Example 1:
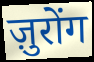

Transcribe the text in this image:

ज़ुरोंग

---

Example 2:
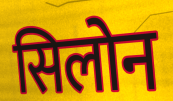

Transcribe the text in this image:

सिलोन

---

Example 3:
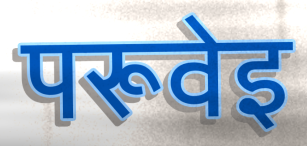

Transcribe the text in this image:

परूवेइ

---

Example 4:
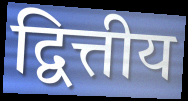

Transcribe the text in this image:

द्वित्तीय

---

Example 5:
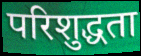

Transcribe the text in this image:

परिशुद्धता